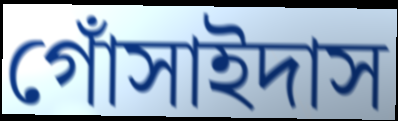
গোঁসাইদাস